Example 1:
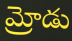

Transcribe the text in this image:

మ్రోడు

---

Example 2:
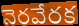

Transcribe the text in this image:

నెరవేరక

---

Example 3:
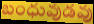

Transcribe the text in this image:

బంధువుడవు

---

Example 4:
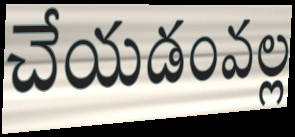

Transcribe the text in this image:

చేయడంవల్ల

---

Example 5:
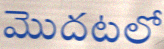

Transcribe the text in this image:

మొదటలో